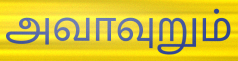
அவாவுறும்